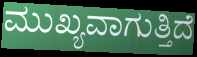
ಮುಖ್ಯವಾಗುತ್ತಿದೆ